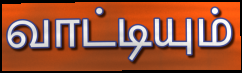
வாட்டியும்